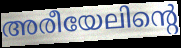
അരീയേലിന്റെ